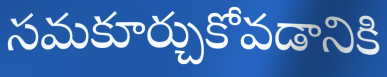
సమకూర్చుకోవడానికి